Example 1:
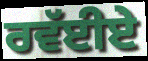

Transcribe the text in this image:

ਰਵੱਈਏ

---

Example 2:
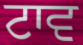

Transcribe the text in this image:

ਟਾਵ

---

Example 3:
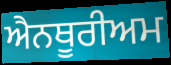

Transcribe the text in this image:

ਐਨਥੂਰੀਅਮ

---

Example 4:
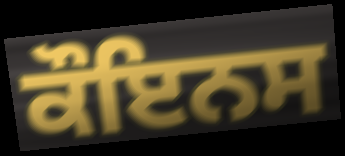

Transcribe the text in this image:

ਕੌਇਨਸ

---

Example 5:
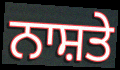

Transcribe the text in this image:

ਨਾਸ਼ਤੇ